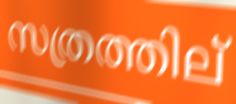
സത്രത്തില്